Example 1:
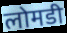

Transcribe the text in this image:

लोमडी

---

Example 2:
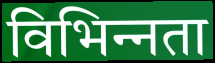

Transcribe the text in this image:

विभिन्‍नता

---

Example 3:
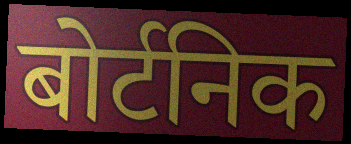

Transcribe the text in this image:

बोर्टनिक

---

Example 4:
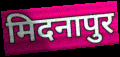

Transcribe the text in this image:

मिदनापुर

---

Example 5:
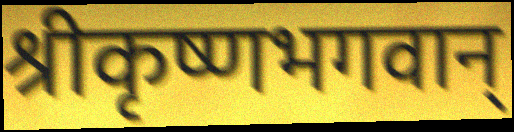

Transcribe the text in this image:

श्रीकृष्णभगवान्